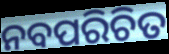
ନବପରିଚିତ